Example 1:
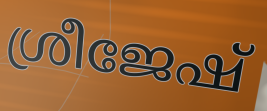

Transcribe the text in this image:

ശ്രീജേഷ്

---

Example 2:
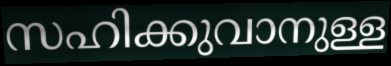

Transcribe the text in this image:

സഹിക്കുവാനുള്ള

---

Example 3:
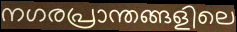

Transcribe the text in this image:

നഗരപ്രാന്തങ്ങളിലെ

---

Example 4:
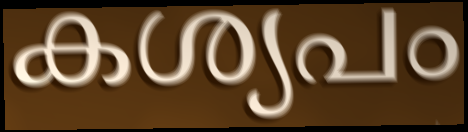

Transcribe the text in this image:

കശ്യപം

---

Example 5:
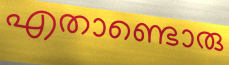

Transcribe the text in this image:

എതാണ്ടൊരു